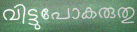
വിട്ടുപോകരുതു